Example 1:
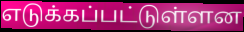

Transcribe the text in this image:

எடுக்கப்பட்டுள்ளன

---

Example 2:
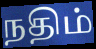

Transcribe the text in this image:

நதிம்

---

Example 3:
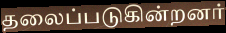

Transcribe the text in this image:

தலைப்படுகின்றனர்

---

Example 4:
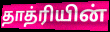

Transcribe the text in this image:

தாத்ரியின்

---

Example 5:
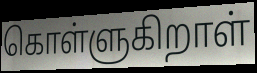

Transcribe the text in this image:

கொள்ளுகிறாள்